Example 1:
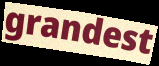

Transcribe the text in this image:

grandest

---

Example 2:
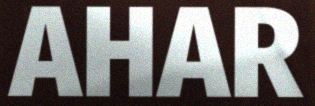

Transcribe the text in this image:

AHAR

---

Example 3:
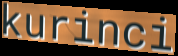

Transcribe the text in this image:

kurinci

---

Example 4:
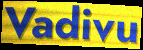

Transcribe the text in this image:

Vadivu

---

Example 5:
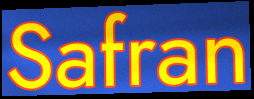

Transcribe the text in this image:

Safran